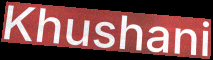
Khushani